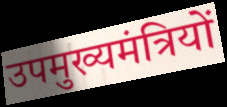
उपमुख्यमंत्रियों